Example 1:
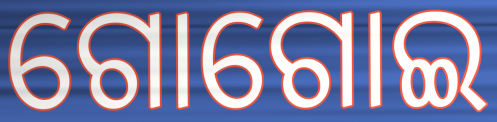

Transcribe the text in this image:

ଗୋଗୋଇ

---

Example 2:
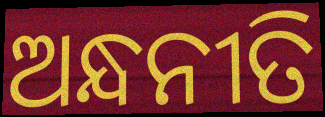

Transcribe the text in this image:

ଅନ୍ଧନୀତି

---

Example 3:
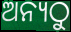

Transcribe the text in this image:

ଅନ୍ୟଠୁ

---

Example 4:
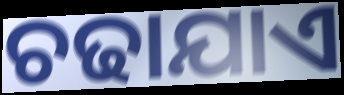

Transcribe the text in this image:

ଚଢାଯାଏ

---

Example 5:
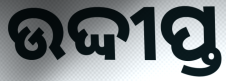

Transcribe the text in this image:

ଉଦ୍ଦୀପ୍ତ